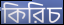
কিরিচ